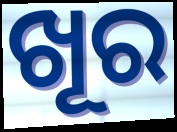
ଖୂର